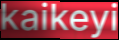
kaikeyi